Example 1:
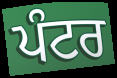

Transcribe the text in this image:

ਪੰਟਰ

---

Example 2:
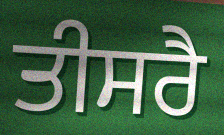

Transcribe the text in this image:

ਤੀਸਰੈ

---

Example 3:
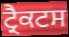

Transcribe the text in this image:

ਟ੍ਰੈਕਟਸ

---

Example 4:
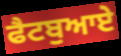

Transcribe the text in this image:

ਫੈਟਬੁਆਏ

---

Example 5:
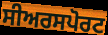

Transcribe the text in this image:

ਸੀਅਰਸਪੋਰਟ